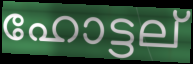
ഹോട്ടല്